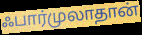
ஃபார்முலாதான்